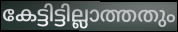
കേട്ടിട്ടില്ലാത്തതും